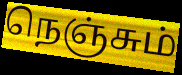
நெஞ்சும்